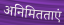
अनिमितताएं